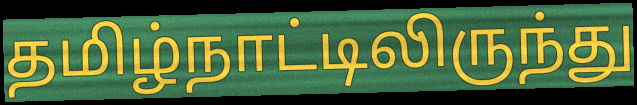
தமிழ்நாட்டிலிருந்து